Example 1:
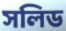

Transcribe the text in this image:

সলিড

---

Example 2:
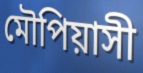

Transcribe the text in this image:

মৌপিয়াসী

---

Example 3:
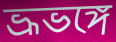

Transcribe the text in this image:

ভ্রূভঙ্গে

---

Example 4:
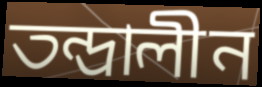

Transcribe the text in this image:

তন্দ্রালীন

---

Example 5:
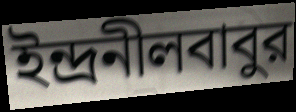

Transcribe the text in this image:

ইন্দ্রনীলবাবুর